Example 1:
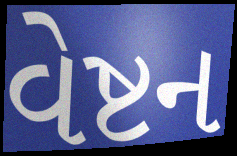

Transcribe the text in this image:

વેષ્ટન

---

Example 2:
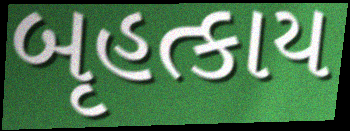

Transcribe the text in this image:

બૃહત્કાય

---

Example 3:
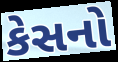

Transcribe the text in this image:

કેસનો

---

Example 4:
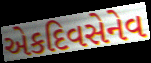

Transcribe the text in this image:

એકદિવસેનેવ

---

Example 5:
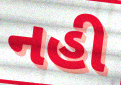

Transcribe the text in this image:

નહી